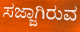
ಸಜ್ಜಾಗಿರುವ